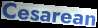
Cesarean